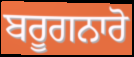
ਬਰੂਗਨਾਰੋ